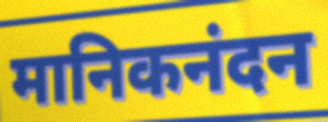
मानिकनंदन